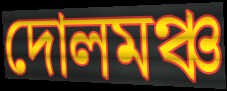
দোলমঞ্চ